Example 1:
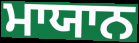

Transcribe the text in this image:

ਮਾਯਾਨ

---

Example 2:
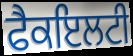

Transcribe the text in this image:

ਫੈਕਇਲਟੀ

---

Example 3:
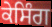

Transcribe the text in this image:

ਕੇਸਿੰਗ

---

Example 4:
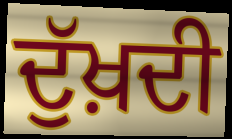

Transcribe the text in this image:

ਦੁੱਖ਼ਦੀ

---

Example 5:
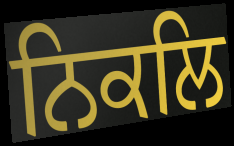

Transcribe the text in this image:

ਨਿਕਲਿ